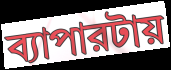
ব্যাপারটায়